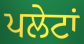
ਪਲੇਟਾਂ